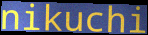
nikuchi